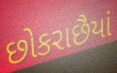
છોકરાછૈયાં